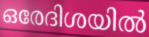
ഒരേദിശയിൽ